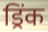
ड्रिंक